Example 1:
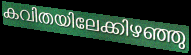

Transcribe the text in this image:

കവിതയിലേക്കിഴഞ്ഞു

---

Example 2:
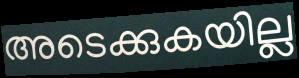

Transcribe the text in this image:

അടെക്കുകയില്ല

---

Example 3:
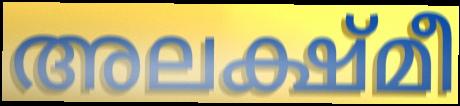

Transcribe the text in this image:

അലക്ഷ്മീ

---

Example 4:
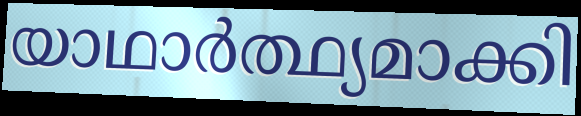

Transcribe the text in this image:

യാഥാർത്ഥ്യമാക്കി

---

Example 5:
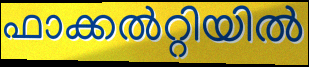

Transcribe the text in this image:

ഫാക്കൽറ്റിയിൽ